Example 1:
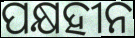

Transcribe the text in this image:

ପକ୍ଷହୀନ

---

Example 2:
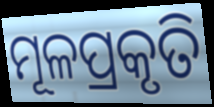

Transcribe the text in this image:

ମୂଳପ୍ରକୃତି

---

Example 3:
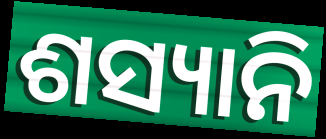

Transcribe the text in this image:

ଶସ୍ୟାନି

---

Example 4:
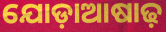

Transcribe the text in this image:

ଯୋଡ଼ାଆଷାଢ଼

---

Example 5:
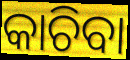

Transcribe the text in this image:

କାଚିବା